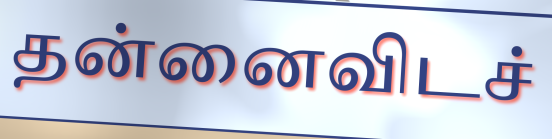
தன்னைவிடச்